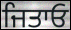
ਜਿਤਾਓ